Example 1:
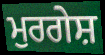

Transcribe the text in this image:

ਮੁਰਗੇਸ਼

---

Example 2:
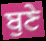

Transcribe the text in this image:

ਬੁਣੇ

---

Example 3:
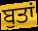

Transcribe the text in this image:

ਬੁਤਾਂ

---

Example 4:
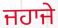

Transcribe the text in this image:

ਜਹਾਜੇ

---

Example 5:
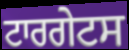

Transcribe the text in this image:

ਟਾਰਗੇਟਸ